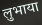
लुभाया